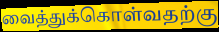
வைத்துக்கொள்வதற்கு